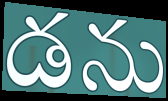
డను